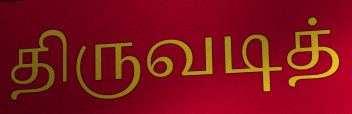
திருவடித்